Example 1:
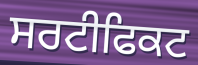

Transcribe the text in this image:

ਸਰਟੀਫਿਕਟ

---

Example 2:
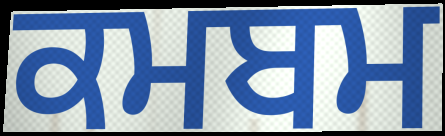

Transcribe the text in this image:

ਕਮਬਮ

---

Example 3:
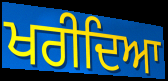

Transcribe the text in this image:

ਖਰੀਦਿਆ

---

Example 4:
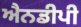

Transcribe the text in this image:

ਐਨਡੀਪੀ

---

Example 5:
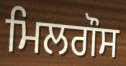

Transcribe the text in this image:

ਮਿਲਗੌਸ